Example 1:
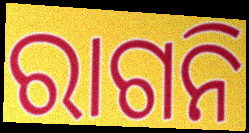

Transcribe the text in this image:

ରାଗନି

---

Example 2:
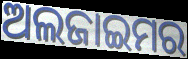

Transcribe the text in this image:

ଅଲଜାଇମର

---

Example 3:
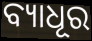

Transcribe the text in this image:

ବ୍ୟାଧୂର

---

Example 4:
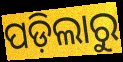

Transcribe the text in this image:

ପଡ଼ିଲାରୁ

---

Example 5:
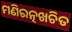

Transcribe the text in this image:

ମଣିରତ୍ନଖଚିତ